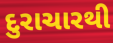
દુરાચારથી